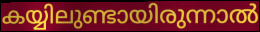
കയ്യിലുണ്ടായിരുന്നാൽ